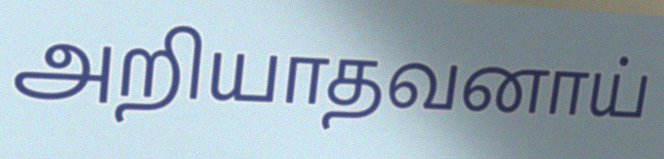
அறியாதவனாய்